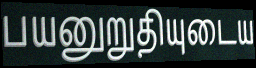
பயனுறுதியுடைய